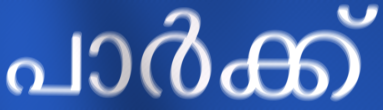
പാർക്ക്